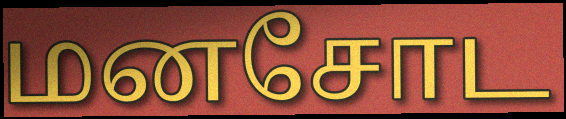
மனசோட